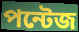
পন্টেজ